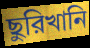
ছুরিখানি